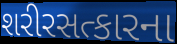
શરીરસત્કારના